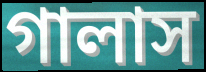
গালাস